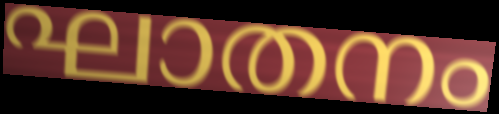
ഘാതനം